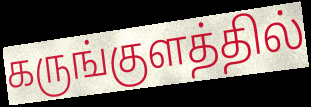
கருங்குளத்தில்